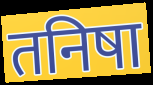
तनिषा